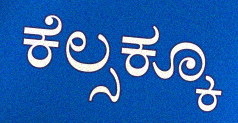
ಕೆಲ್ಸಕ್ಕೂ